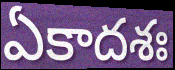
ఏకాదశః